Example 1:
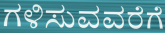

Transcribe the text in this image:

ಗಳಿಸುವವರೆಗೆ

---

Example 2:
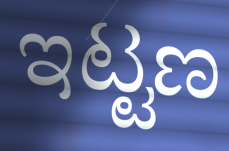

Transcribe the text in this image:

ಇಟ್ಟಣ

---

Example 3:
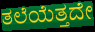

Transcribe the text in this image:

ತಲೆಯೆತ್ತದೇ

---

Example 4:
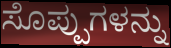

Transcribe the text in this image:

ಸೊಪ್ಪುಗಳನ್ನು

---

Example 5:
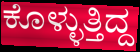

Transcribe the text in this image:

ಕೊಳ್ಳುತ್ತಿದ್ದ